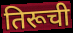
तिरूची